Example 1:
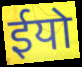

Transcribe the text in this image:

ईयो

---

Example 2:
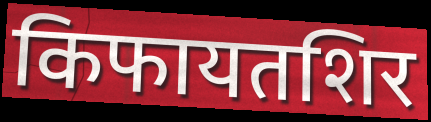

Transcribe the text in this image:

किफायतशिर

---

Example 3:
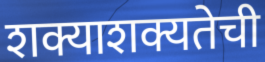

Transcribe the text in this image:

शक्याशक्यतेची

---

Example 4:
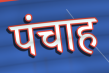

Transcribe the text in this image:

पंचाह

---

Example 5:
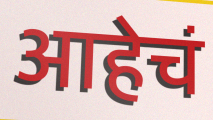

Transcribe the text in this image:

आहेचं